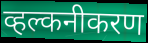
व्हल्कनीकरण